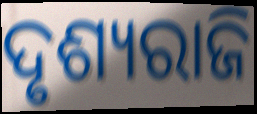
ଦୃଶ୍ୟରାଜି